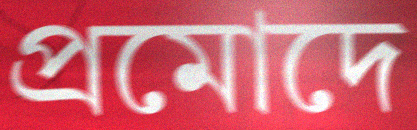
প্ৰমোদে